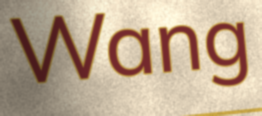
Wang